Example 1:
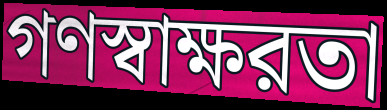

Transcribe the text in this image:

গণস্বাক্ষরতা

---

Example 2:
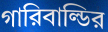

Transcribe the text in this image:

গারিবাল্ডির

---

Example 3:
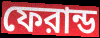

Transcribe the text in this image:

ফেরান্ড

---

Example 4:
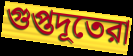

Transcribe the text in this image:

গুপ্তদূতেরা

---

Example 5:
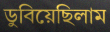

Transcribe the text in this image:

ডুবিয়েছিলাম